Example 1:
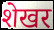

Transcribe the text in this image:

शेखर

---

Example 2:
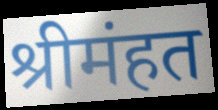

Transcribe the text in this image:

श्रीमंहत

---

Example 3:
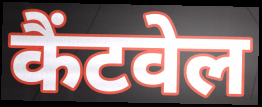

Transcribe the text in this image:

कैंटवेल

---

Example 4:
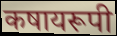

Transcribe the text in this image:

कषायरूपी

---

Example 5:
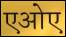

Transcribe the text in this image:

एओए